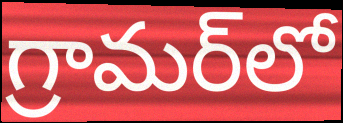
గ్రామర్‌లో